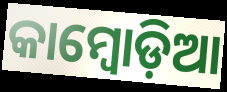
କାମ୍ବୋଡ଼ିଆ